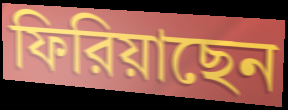
ফিরিয়াছেন